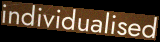
individualised